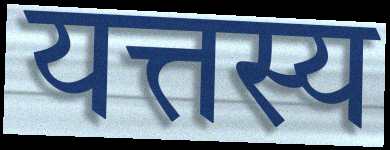
यत्तस्य